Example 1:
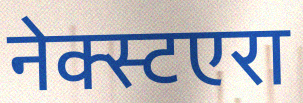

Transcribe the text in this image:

नेक्स्टएरा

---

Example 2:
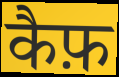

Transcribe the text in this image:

कैफ़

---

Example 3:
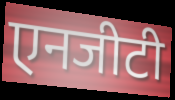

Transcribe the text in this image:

एनजीटी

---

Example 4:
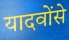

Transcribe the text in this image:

यादवोंसे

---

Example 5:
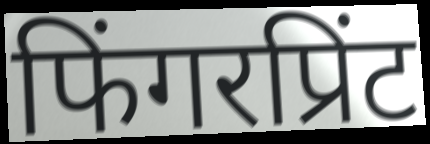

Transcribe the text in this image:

फिंगरप्रिंट